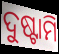
ଦୁଷ୍ଟାମି